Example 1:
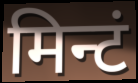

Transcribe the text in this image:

मिन्टं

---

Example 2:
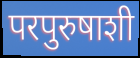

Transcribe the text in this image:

परपुरुषाशी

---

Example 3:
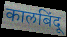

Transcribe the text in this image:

कालबिंदू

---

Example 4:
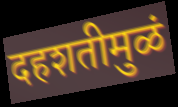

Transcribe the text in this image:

दहशतीमुळं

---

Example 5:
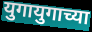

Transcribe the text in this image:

युगायुगाच्या